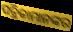
ପତ୍ରିକାମାନଙ୍କର